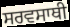
ਸਰਵਸਾਥੀ